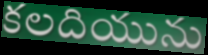
కలదియును